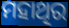
ମହାଥିର